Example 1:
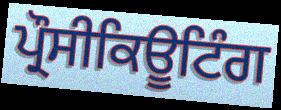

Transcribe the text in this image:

ਪ੍ਰੌਸੀਕਿਊਟਿੰਗ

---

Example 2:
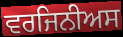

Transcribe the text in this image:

ਵਰਜਿਨੀਅਸ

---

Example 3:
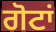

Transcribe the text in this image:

ਗੋਟਾਂ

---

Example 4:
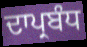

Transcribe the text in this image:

ਦਾਪ੍ਰਬੰਧ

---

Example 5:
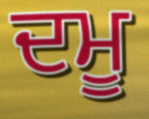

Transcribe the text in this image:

ਦਮੂ